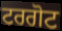
ਟਰਗੋਟ